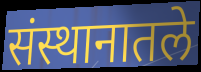
संस्थानातले